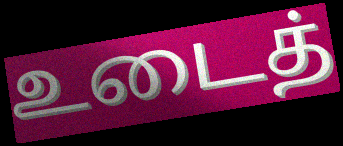
உடைத்